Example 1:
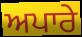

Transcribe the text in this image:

ਅਪਾਰੇ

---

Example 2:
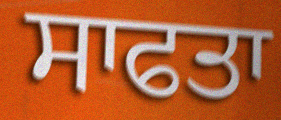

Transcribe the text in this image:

ਸਾਫਤਾ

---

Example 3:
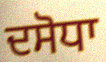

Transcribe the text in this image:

ਦਸੋਧਾ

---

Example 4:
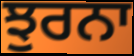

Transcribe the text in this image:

ਝੁਰਨਾ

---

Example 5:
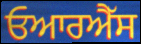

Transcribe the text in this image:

ਓਆਰਐੱਸ